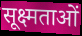
सूक्ष्मताओं